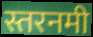
स्तरनमी